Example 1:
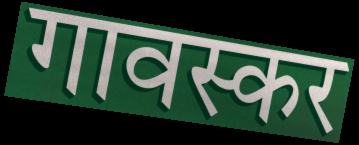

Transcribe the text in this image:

गावस्‍कर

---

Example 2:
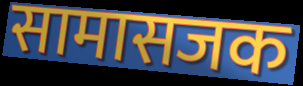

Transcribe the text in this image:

सामासजक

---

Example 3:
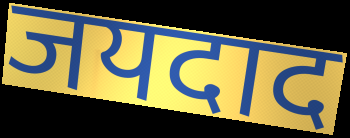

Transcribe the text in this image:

जयदाद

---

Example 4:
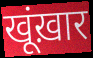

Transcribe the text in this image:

खूंख़ार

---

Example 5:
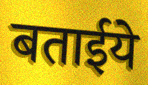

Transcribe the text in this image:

बताईये